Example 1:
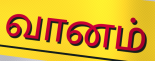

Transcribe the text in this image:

வானம்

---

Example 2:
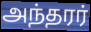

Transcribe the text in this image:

அந்தரர்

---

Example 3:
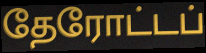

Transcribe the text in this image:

தேரோட்டப்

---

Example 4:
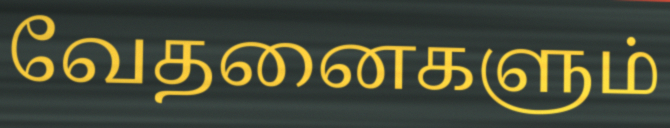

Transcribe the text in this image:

வேதனைகளும்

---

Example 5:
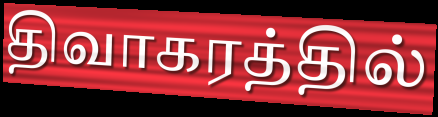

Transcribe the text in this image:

திவாகரத்தில்